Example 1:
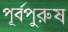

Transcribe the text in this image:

পূর্বপুরুষ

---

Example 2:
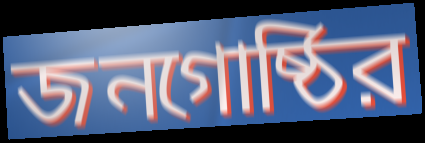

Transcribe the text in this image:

জনগোষ্ঠির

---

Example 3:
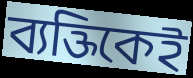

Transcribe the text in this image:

ব্যক্তিকেই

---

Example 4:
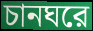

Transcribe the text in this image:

চানঘরে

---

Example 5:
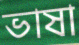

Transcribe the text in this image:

ভাষা